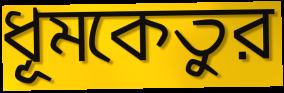
ধূমকেতুর